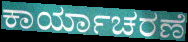
ಕಾರ್ಯಾಚರಣೆ